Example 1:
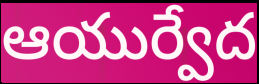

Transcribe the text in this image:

ఆయుర్వేద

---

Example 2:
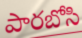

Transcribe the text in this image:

పారబోసి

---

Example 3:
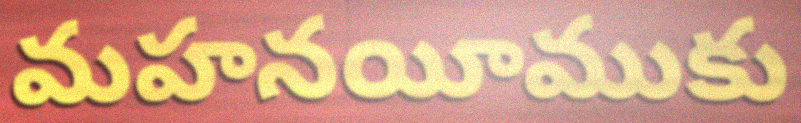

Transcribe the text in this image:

మహనయీముకు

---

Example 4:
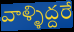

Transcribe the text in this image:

వాళ్ళిద్దరే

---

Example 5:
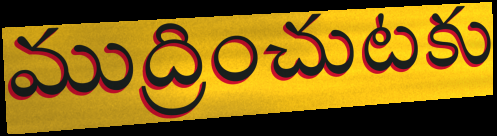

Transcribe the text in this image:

ముద్రించుటకు